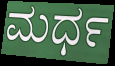
ಮರ್ಧ